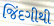
જિંદગીથી